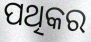
ପଥିକର